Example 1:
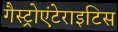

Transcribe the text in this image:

गैस्ट्रोएंटेराइटिस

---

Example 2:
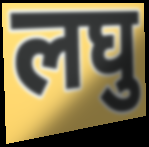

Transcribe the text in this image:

लघु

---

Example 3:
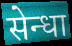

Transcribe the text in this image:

सेन्धा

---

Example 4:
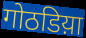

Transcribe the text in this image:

गोठडिय़ा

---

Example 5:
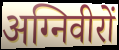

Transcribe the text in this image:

अग्निवीरों